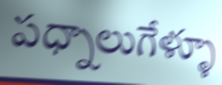
పధ్నాలుగేళ్ళూ